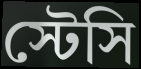
স্টেসি